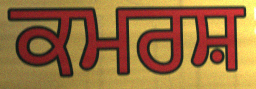
ਕਮਰਸ਼